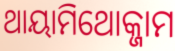
ଥାୟାମିଥୋକ୍ଜାମ